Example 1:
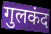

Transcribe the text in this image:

गुलकंद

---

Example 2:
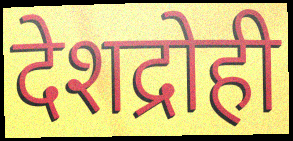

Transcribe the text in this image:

देशद्रोही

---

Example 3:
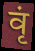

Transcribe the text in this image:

वृं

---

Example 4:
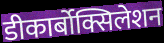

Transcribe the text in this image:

डीकार्बोक्सिलेशन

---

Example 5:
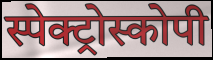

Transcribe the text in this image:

स्पेक्ट्रोस्कोपी